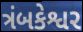
ત્રંબકેશ્વર